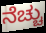
ನೆಚ್ಚು